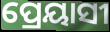
ପ୍ରେୟାସୀ